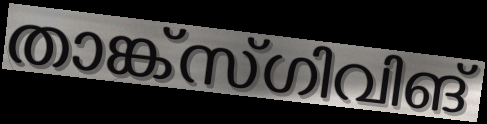
താങ്ക്സ്ഗിവിങ്